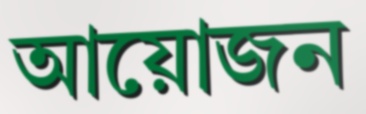
আয়োজন